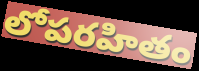
లోపరహితం